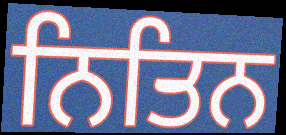
ਨਿਤਿਨ